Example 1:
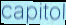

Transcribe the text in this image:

capitol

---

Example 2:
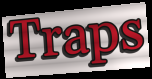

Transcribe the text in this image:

Traps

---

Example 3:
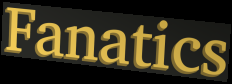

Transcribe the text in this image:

Fanatics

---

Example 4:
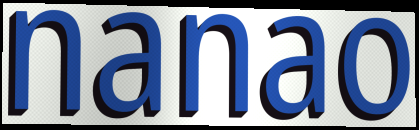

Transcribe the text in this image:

nanao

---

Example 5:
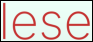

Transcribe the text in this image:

lese